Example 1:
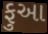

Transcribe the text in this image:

ફુઆ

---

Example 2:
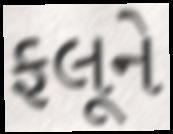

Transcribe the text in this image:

ફલૂને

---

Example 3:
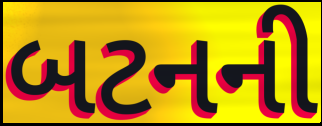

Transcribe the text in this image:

બટનની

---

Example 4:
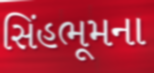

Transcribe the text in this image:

સિંહભૂમના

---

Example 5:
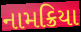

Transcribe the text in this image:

નામક્રિયા